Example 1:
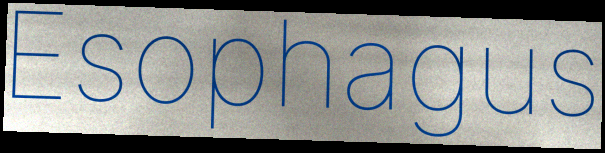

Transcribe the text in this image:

Esophagus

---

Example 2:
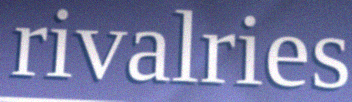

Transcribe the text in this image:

rivalries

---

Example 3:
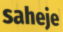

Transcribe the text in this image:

saheje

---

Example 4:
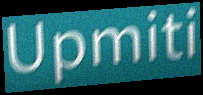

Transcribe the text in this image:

Upmiti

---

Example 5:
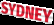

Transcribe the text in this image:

SYDNEY